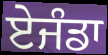
ਏਜੰਡਾ